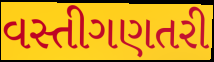
વસ્તીગણતરી